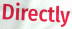
Directly